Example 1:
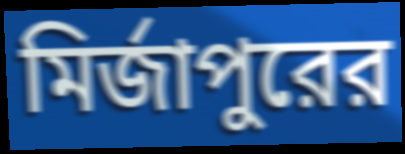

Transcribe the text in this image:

মির্জাপুরের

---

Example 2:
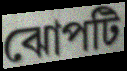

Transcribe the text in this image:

ঝোপটি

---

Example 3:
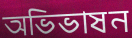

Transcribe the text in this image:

অভিভাষন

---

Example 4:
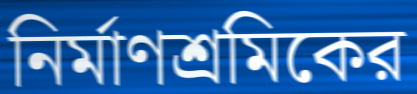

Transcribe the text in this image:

নির্মাণশ্রমিকের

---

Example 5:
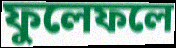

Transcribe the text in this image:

ফুলেফলে